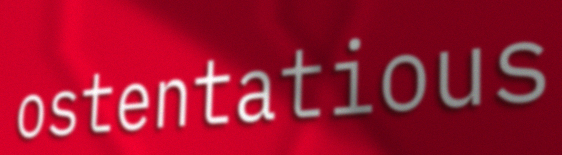
ostentatious